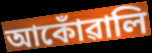
আকোঁৱালি